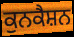
ਕੁਨਕੈਸ਼ਨ